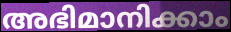
അഭിമാനിക്കാം